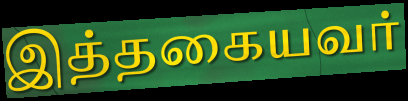
இத்தகையவர்